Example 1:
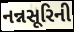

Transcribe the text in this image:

નન્નસૂરિની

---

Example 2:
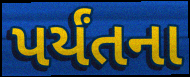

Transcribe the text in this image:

પર્યંતના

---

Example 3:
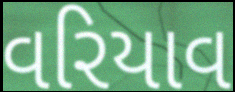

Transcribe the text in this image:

વરિયાવ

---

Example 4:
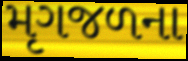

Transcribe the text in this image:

મૃગજળના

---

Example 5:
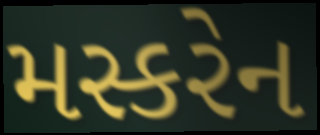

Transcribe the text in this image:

મસ્કરેન